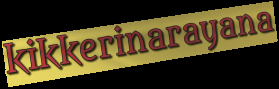
kikkerinarayana